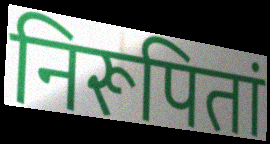
निरूपितां